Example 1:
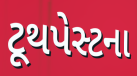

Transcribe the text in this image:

ટૂથપેસ્ટના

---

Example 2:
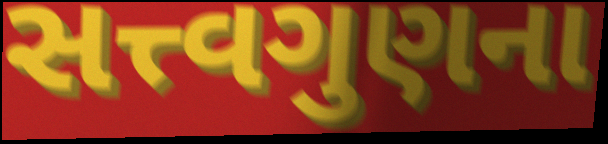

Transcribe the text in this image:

સત્ત્વગુણના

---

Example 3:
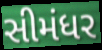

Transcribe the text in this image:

સીમંધર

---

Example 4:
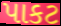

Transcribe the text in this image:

પાકટ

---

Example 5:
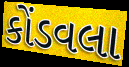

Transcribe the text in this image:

કોંડવલા